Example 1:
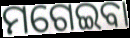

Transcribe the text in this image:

ମଗେଇବା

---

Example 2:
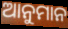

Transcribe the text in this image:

ଆନୁମାନ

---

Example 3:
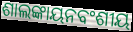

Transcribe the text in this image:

ଶାଲଙ୍କାୟନବଂଶୀୟ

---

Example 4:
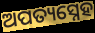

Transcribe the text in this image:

ଅପତ୍ୟସ୍ନେହ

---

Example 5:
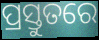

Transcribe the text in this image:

ପ୍ରସ୍ତୁତରେ